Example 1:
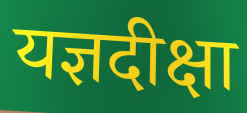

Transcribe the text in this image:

यज्ञदीक्षा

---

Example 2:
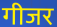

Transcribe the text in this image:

गीजर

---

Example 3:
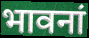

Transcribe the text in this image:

भावनां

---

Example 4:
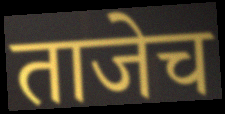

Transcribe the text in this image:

ताजेच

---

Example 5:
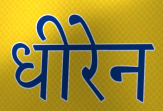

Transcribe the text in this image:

धीरेन